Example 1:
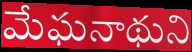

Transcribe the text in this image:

మేఘనాథుని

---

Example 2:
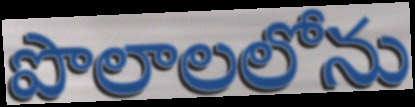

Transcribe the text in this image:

పొలాలలోను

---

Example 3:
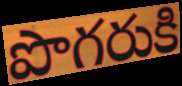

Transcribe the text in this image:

పొగరుకి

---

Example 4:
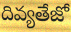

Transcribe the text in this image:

దివ్యతేజో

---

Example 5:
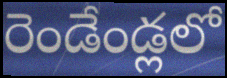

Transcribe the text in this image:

రెండేండ్లలో